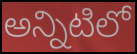
అన్నిటిలో